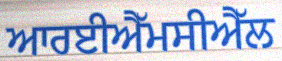
ਆਰਈਐੱਮਸੀਐੱਲ